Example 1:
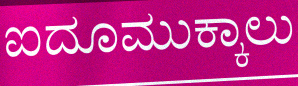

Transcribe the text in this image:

ಐದೂಮುಕ್ಕಾಲು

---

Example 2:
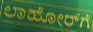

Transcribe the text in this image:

ಲಾಹೋರ್‌ಗೆ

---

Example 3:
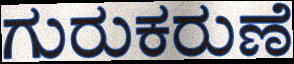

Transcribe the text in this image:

ಗುರುಕರುಣೆ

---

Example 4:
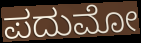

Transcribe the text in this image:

ಪದುಮೋ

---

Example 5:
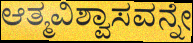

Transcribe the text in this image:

ಆತ್ಮವಿಶ್ವಾಸವನ್ನೇ